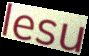
Iesu